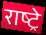
राष्ट्रे